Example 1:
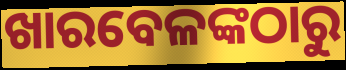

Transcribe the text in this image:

ଖାରବେଳଙ୍କଠାରୁ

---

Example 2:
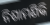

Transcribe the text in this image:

ନିଶାମଣିକି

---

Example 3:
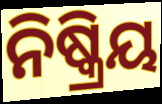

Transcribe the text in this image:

ନିଷ୍କ୍ରିୟ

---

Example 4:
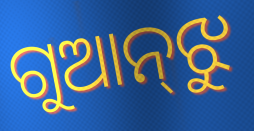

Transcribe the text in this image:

ଗୁଆନ୍‌ଝୁ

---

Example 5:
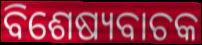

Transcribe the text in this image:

ବିଶେଷ୍ୟବାଚକ